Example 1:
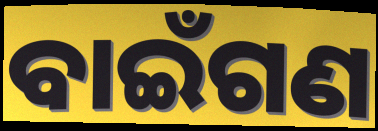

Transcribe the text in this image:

ବାଇଁଗଣ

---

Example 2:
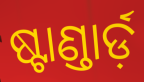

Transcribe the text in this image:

ଷ୍ଟାଣ୍ଡାର୍ଡ଼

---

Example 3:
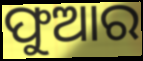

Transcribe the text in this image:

ଫୁଆର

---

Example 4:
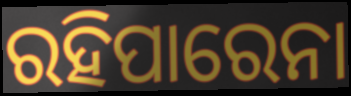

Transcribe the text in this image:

ରହିପାରେନା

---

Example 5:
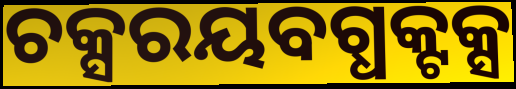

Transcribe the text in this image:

ଚକ୍ସରୟବଗ୍ଧକ୍ଟକ୍ସ